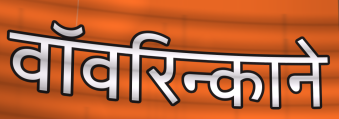
वॉवरिन्काने